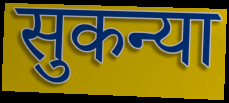
सुकन्या